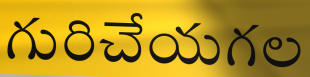
గురిచేయగల